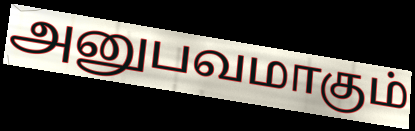
அனுபவமாகும்